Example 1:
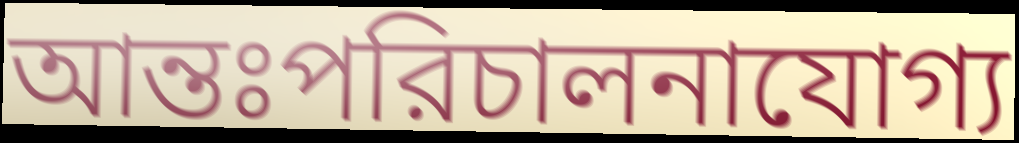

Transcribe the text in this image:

আন্তঃপরিচালনাযোগ্য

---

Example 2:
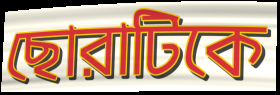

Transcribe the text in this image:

ছোরাটিকে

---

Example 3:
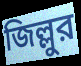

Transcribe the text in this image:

জিল্লুর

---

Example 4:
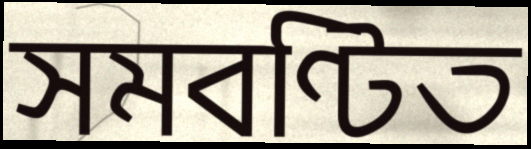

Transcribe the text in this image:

সমবণ্টিত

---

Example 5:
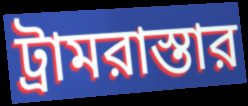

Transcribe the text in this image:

ট্রামরাস্তার